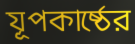
যূপকাষ্ঠের